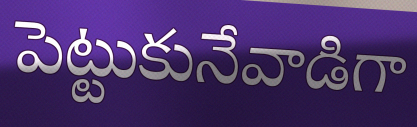
పెట్టుకునేవాడిగా